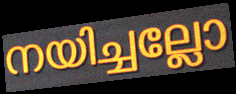
നയിച്ചല്ലോ